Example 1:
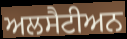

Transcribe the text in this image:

ਅਲਸੈਟੀਅਨ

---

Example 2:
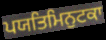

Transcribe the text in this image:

ਪਯਤਿਮਿਨੁਟਕਾ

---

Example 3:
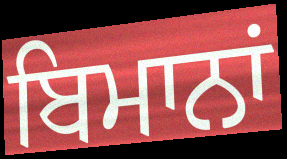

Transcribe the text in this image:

ਬਿਮਾਨਾਂ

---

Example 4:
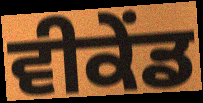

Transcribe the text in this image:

ਵੀਕੇਂਡ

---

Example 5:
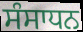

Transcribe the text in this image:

ਸੰਸਾਧਨ